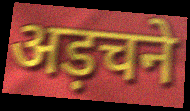
अड़चने